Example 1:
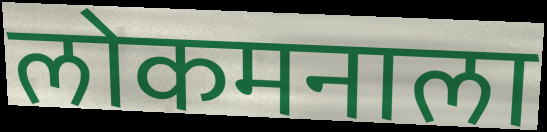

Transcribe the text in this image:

लोकमनाला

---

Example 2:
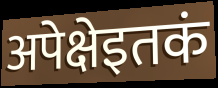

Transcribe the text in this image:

अपेक्षेइतकं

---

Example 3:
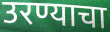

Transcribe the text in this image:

उरण्याचा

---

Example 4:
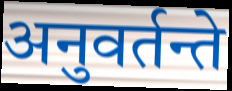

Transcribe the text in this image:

अनुवर्तन्ते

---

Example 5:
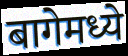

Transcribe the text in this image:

बागेमध्ये